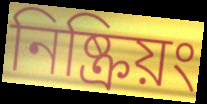
নিষ্ক্রিয়ং